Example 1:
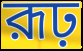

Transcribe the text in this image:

রূঢ়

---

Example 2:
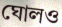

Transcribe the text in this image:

ঘোলও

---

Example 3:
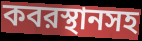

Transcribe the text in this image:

কবরস্থানসহ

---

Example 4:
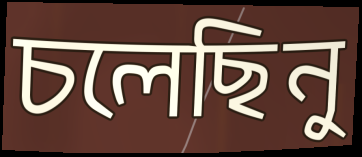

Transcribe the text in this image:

চলেছিনু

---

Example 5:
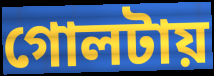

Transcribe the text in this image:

গোলটায়